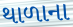
થાળાના